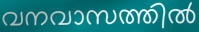
വനവാസത്തിൽ